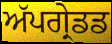
ਅੱਪਗ੍ਰੇਡਡ